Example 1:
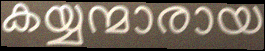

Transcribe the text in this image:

കയ്യന്മാരായ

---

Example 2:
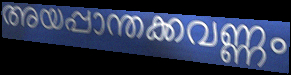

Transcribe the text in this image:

അയപ്പാന്തക്കവണ്ണം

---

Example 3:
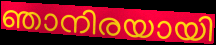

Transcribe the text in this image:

ഞാനിരയായി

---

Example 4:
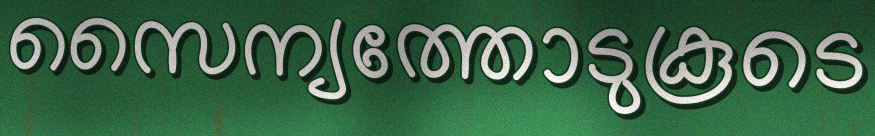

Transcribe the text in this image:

സൈന്യത്തോടുകൂടെ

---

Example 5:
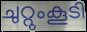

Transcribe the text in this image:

ചുറ്റുംകൂടി